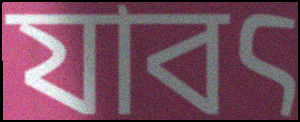
যাবৎ